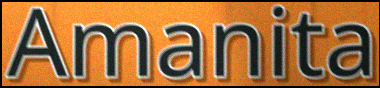
Amanita